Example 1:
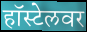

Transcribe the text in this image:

हॉस्टेलवर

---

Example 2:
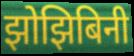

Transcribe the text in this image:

झोझिबिनी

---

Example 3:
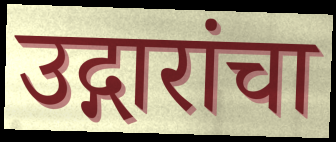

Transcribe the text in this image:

उद्गारांचा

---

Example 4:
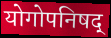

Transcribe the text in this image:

योगोपनिषद्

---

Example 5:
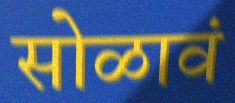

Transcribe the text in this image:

सोळावं